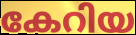
കേറിയ